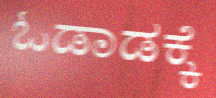
ಓಡಾಡಕ್ಕೆ